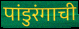
पांडुरंगाची